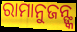
ରାମାନୁଜନ୍ଙ୍କ